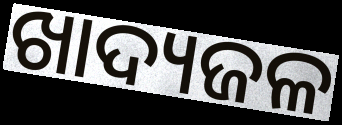
ଖାଦ୍ୟଜଳ